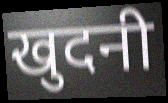
खुदनी